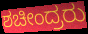
ಶಚೀಂದ್ರರು